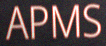
APMS